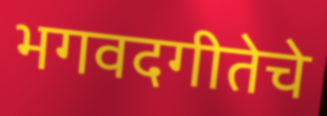
भगवदगीतेचे